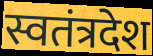
स्वतंत्रदेश